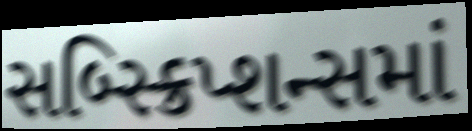
સબ્સ્ક્રિપ્શન્સમાં